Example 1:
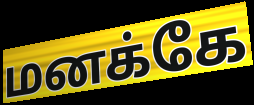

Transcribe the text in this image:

மனக்கே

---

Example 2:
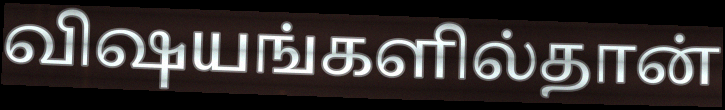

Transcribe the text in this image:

விஷயங்களில்தான்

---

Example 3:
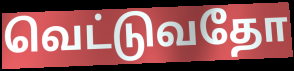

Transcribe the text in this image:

வெட்டுவதோ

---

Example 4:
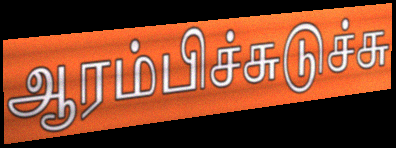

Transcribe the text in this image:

ஆரம்பிச்சுடுச்சு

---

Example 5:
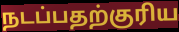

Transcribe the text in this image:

நடப்பதற்குரிய